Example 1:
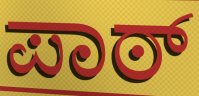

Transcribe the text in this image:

ಪಾಠ್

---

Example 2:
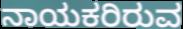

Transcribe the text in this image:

ನಾಯಕರಿರುವ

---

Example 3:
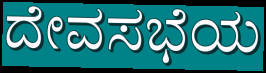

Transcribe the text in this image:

ದೇವಸಭೆಯ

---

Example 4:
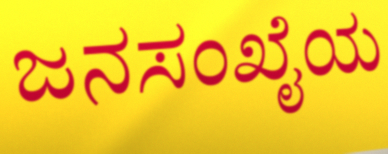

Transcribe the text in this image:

ಜನಸಂಖೈಯ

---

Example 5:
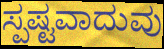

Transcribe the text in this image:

ಸ್ಪಷ್ಟವಾದುವು